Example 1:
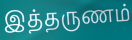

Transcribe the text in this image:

இத்தருணம்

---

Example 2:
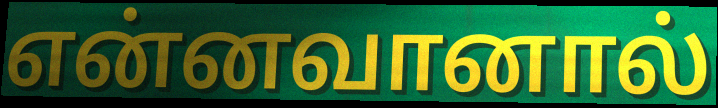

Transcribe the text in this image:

என்னவானால்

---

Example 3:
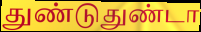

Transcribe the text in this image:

துண்டுதுண்டா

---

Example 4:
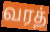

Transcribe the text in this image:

வரத்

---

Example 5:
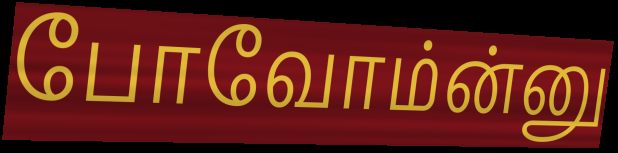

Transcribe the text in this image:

போவோம்ன்னு